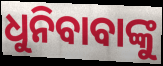
ଧୁନିବାବାଙ୍କୁ